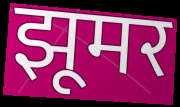
झूमर